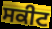
ਸਕੀਟ